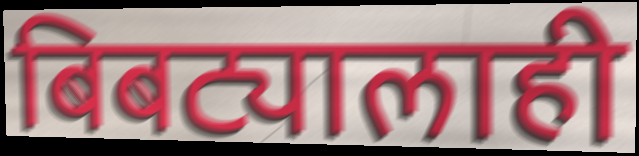
बिबट्यालाही